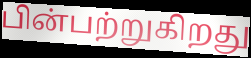
பின்பற்றுகிறது